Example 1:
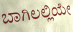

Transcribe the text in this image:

ಬಾಗಿಲಲ್ಲಿಯೇ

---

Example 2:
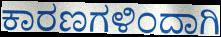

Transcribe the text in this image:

ಕಾರಣಗಳಿಂದಾಗಿ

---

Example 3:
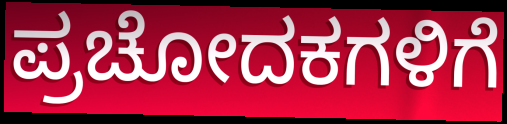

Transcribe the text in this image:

ಪ್ರಚೋದಕಗಳಿಗೆ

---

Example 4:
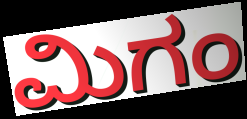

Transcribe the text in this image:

ಮಿಗಂ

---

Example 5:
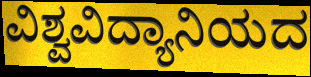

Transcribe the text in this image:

ವಿಶ್ವವಿದ್ಯಾನಿಯದ